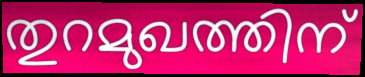
തുറമുഖത്തിന്